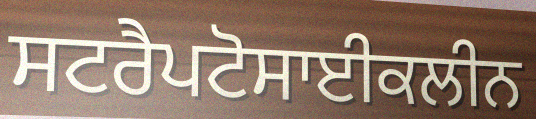
ਸਟਰੈਪਟੋਸਾਈਕਲੀਨ